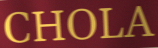
CHOLA